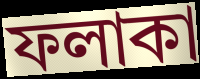
ফলাকা